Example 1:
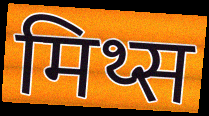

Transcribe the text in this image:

मिथ्स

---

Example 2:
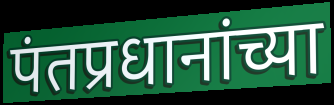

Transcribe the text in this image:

पंतप्रधानांच्या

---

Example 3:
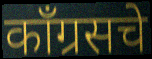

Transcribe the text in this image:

काँग्रसचे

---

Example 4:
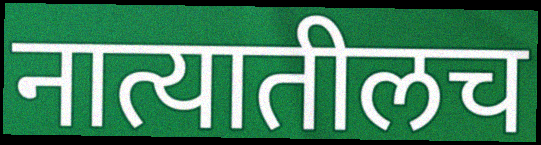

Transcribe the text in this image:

नात्यातीलच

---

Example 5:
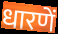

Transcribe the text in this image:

धारणें